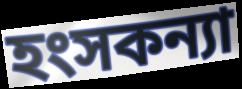
হংসকন্যা